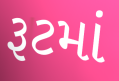
રૂટમાં